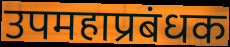
उपमहाप्रबंधक